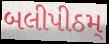
બલીપીઠમ્